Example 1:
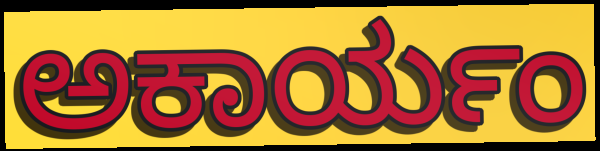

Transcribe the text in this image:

ಅಕಾರ್ಯಂ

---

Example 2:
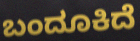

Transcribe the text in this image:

ಬಂದೂಕಿದೆ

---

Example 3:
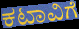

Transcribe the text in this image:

ಕಟಾವಿಗೆ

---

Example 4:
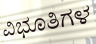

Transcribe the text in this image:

ವಿಭೂತಿಗಳ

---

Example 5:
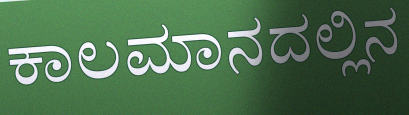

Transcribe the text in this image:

ಕಾಲಮಾನದಲ್ಲಿನ